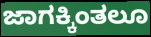
ಜಾಗಕ್ಕಿಂತಲೂ